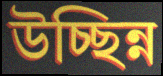
উচ্ছিন্ন